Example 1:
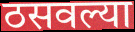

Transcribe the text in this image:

ठसवल्या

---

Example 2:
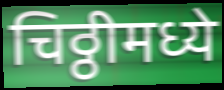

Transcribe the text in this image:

चिठ्ठीमध्ये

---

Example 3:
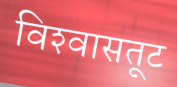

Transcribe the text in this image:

विश्वासतूट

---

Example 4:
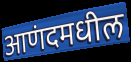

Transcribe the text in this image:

आणंदमधील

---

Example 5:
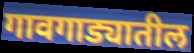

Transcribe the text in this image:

गावगाड्यातील